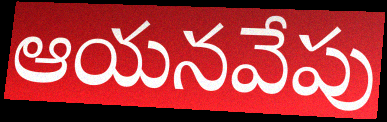
ఆయనవేపు